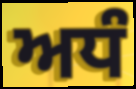
ਅਧੰ